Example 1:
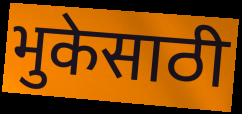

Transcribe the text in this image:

भुकेसाठी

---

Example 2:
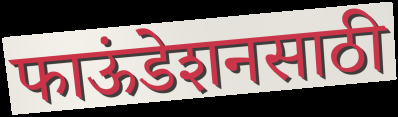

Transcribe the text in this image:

फाऊंडेशनसाठी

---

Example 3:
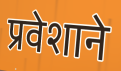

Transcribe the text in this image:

प्रवेशाने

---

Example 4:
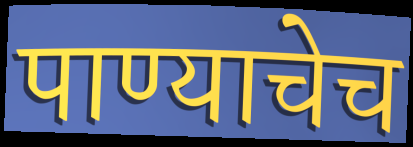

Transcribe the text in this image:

पाण्याचेच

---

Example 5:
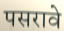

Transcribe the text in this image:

पसरावे